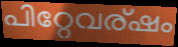
പിറ്റേവര്ഷം